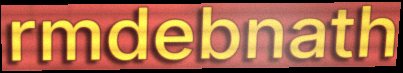
rmdebnath